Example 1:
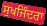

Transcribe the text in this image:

ਸੁਖਜਿੰਦਰਾ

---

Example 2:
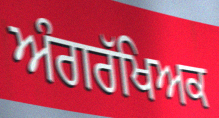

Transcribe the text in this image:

ਅੰਗਰੱਖਿਅਕ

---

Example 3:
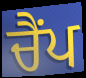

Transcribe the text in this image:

ਚੈਂਪ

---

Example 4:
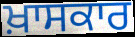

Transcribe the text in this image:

ਖ਼ਾਸਕਾਰ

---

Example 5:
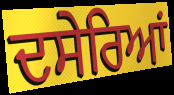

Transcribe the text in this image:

ਦਸੇਰਿਆਂ